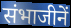
संभाजीनें